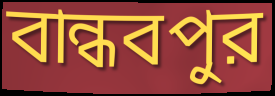
বান্ধবপুর